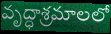
వృద్ధాశ్రమాలలో